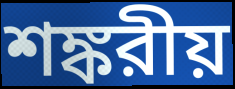
শঙ্করীয়